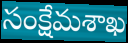
సంక్షేమశాఖ